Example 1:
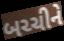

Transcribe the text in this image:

બચ્ચીને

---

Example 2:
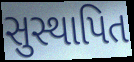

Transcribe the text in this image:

સુસ્થાપિત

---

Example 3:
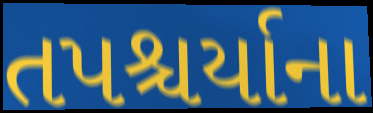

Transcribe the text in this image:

તપશ્ચર્યાના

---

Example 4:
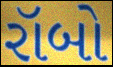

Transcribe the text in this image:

રૉબો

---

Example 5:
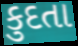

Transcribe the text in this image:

કુદતા